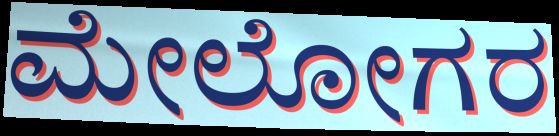
ಮೇಲೋಗರ